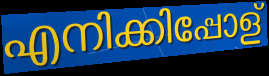
എനിക്കിപ്പോള്